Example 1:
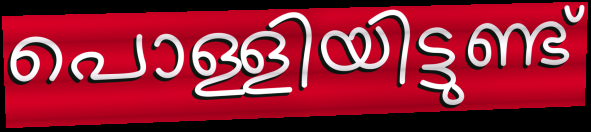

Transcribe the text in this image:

പൊള്ളിയിട്ടുണ്ട്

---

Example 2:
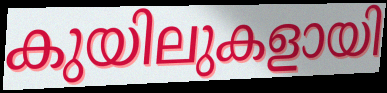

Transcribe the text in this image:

കുയിലുകളായി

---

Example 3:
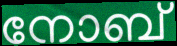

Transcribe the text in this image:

നോബ്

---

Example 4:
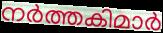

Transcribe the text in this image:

നർത്തകിമാർ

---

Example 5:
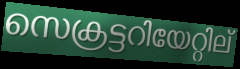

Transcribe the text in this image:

സെക്രട്ടറിയേറ്റില്